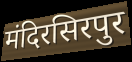
मंदिरसिरपुर